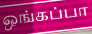
ஒங்கப்பா